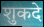
शुकदे